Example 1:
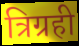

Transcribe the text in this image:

त्रिग्रही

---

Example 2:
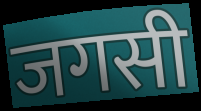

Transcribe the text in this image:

जगसी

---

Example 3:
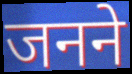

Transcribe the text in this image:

जनने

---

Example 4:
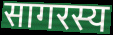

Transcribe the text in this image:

सागरस्य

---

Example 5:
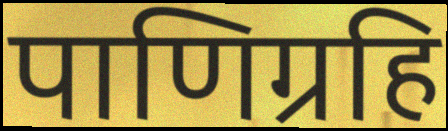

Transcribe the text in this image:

पाणिग्रहि